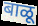
बाळू